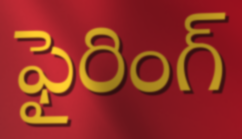
ఫైరింగ్